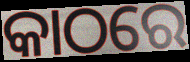
କାଠରେ